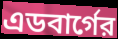
এডবার্গের